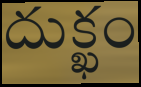
దుక్ఖం